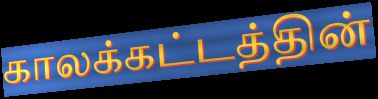
காலக்கட்டத்தின்